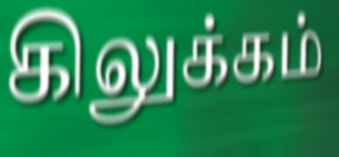
கிலுக்கம்